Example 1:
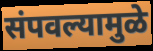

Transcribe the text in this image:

संपवल्यामुळे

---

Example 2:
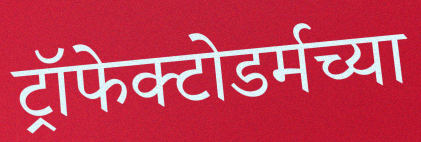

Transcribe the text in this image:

ट्रॉफेक्टोडर्मच्या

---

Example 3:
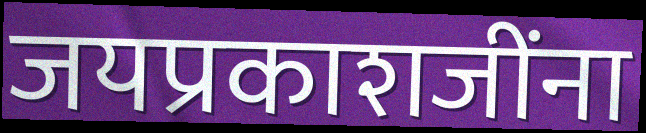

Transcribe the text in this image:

जयप्रकाशजींना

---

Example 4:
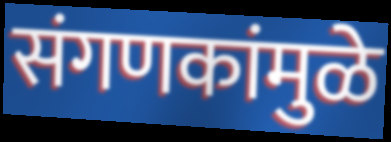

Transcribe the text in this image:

संगणकांमुळे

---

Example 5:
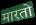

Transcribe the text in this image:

मारतो